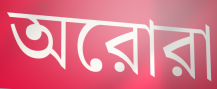
অরোরা